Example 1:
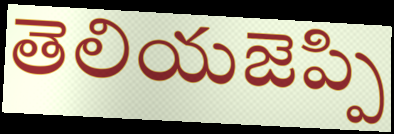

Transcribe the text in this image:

తెలియజెప్పి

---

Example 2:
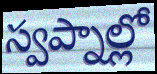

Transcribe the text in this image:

స్వప్నాల్లో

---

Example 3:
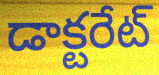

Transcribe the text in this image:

డాక్టరేట్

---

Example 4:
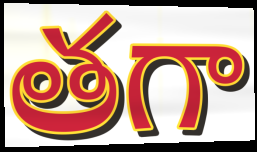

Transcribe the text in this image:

తగా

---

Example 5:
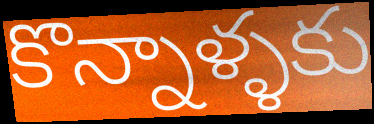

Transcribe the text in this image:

కొన్నాళ్ళకు